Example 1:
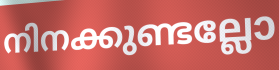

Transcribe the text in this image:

നിനക്കുണ്ടല്ലോ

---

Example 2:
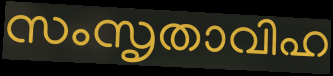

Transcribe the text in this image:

സംസൃതാവിഹ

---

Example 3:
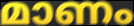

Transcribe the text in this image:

മാണം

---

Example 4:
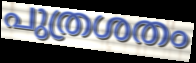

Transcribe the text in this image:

പുത്രശതം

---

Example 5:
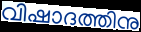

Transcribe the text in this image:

വിഷാദത്തിനു